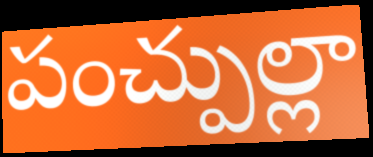
పంచ్పుల్లా